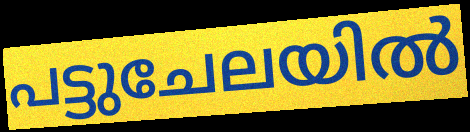
പട്ടുചേലയിൽ